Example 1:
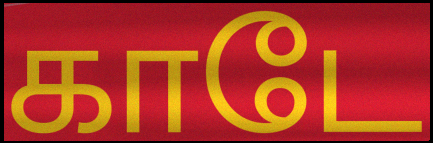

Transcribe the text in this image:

காடே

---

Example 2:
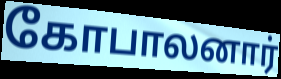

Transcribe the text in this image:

கோபாலனார்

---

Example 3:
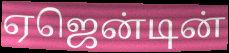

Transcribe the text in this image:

ஏஜென்டின்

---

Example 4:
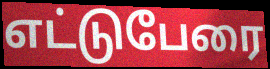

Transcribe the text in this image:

எட்டுபேரை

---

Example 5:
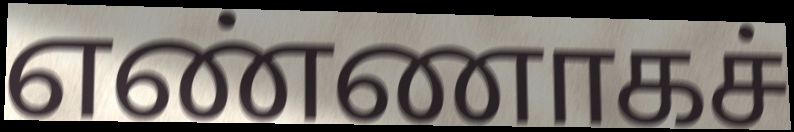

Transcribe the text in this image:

எண்ணாகச்